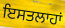
ਇਸਤਲਾਹਾਂ